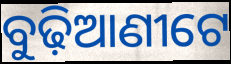
ବୁଢ଼ିଆଣୀଟେ